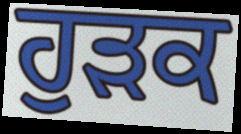
ਹੁੜਕ